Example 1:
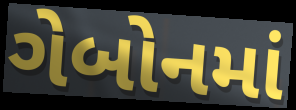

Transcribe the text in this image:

ગેબોનમાં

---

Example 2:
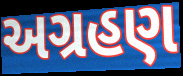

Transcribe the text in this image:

અગ્રહણ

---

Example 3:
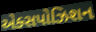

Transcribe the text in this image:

એક્સપોઝિશન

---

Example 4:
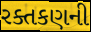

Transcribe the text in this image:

રક્તકણની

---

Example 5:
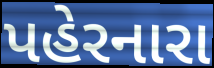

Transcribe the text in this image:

પહેરનારા